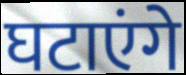
घटाएंगे